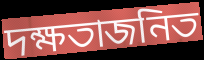
দক্ষতাজনিত